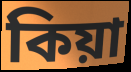
কিয়া